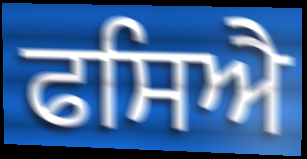
ਫਸਿਐ